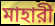
মাহারী